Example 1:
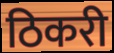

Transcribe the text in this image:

ठिकरी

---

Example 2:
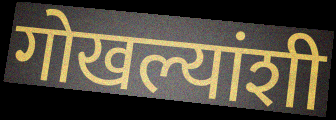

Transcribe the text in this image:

गोखल्यांशी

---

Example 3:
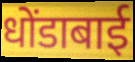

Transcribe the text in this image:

धोंडाबाई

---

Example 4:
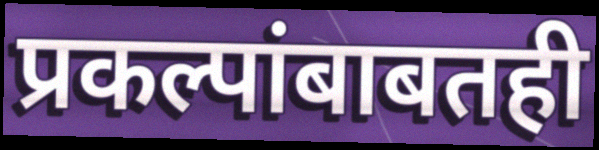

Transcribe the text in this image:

प्रकल्पांबाबतही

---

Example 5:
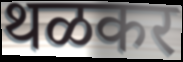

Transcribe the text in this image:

थळकर